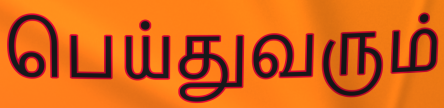
பெய்துவரும்